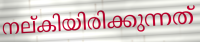
നല്കിയിരിക്കുന്നത്